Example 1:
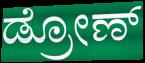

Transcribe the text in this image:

ಡ್ರೋಣ್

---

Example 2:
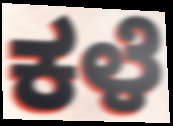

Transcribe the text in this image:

ಕಳೆ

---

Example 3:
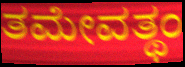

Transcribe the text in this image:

ತಮೇವತ್ಥಂ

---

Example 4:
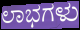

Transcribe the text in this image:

ಲಾಭಗಳು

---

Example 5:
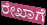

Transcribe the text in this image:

ರೇಖಾಗೆ